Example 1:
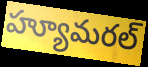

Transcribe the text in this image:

హ్యూమరల్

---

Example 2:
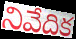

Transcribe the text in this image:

నివేదిక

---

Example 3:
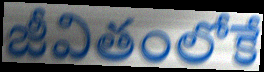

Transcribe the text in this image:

జీవితంలోకే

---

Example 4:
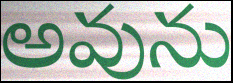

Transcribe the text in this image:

అవును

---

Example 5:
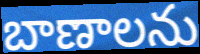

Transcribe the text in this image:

బాణాలను